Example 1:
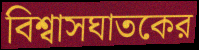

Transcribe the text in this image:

বিশ্বাসঘাতকের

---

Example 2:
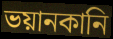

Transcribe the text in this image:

ভয়ানকানি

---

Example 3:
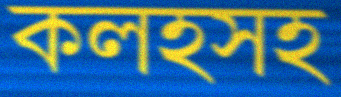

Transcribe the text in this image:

কলহসহ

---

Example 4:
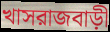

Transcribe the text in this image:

খাসরাজবাড়ী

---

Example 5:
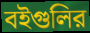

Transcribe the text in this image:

বইগুলির